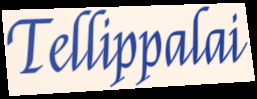
Tellippalai